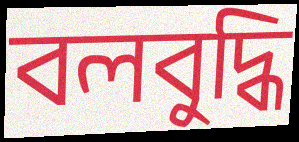
বলবুদ্ধি